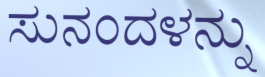
ಸುನಂದಳನ್ನು